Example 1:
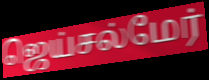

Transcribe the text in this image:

ஜெய்சல்மேர்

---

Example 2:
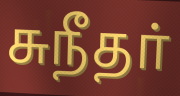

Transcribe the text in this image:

சுநீதர்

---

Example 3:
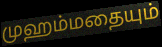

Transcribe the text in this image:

முஹம்மதையும்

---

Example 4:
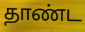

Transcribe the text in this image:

தாண்ட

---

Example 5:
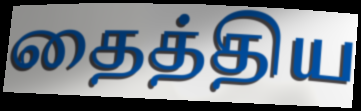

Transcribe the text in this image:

தைத்திய